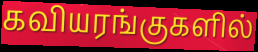
கவியரங்குகளில்